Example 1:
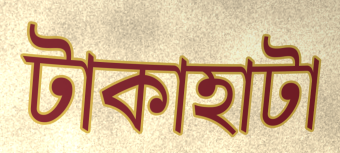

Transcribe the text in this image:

টাকাহাটা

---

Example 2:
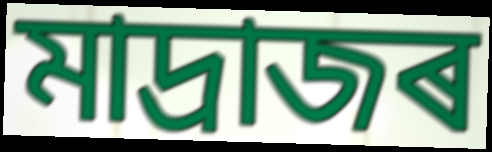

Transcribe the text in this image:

মাদ্ৰাজৰ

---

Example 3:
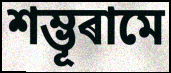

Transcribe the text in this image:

শম্ভূৰামে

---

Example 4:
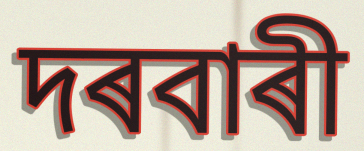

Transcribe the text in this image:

দৰবাৰী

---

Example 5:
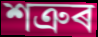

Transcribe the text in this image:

শত্ৰুৰ